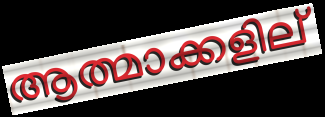
ആത്മാക്കളില്